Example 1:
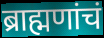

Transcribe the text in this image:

ब्राह्मणांचं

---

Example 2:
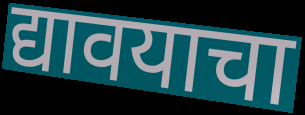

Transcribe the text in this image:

द्यावयाचा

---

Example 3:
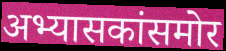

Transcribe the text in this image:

अभ्यासकांसमोर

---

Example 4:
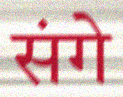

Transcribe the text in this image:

संगे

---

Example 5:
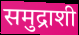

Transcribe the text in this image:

समुद्राशी